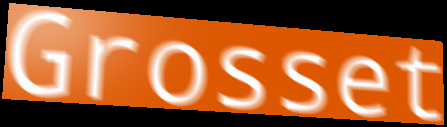
Grosset